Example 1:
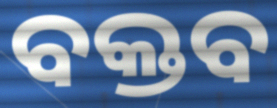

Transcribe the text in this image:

ବକ୍ତବ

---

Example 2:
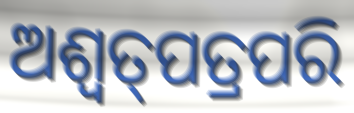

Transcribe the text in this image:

ଅଶ୍ଵତ୍‌ପତ୍ରପରି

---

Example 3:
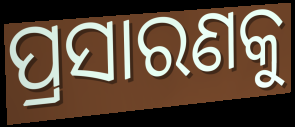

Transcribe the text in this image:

ପ୍ରସାରଣକୁ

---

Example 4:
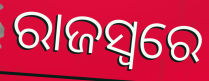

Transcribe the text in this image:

ରାଜସ୍ବରେ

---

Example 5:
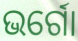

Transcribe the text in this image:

ଭର୍ଗୋ